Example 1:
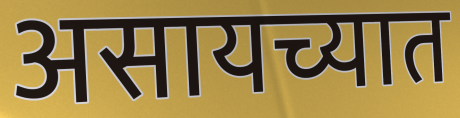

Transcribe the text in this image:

असायच्यात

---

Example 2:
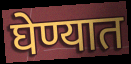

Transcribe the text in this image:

घेण्यात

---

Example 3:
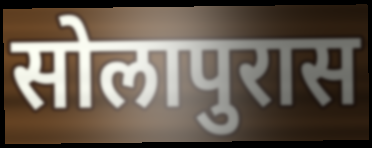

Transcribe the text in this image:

सोलापुरास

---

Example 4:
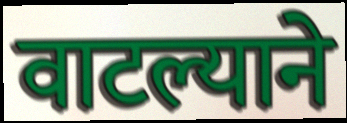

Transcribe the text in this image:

वाटल्याने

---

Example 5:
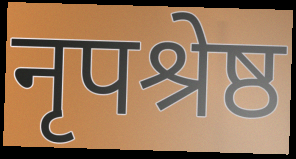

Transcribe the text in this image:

नृपश्रेष्ठ